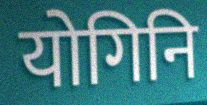
योगिनि